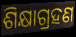
ଶିକ୍ଷାଗ୍ରହଣ